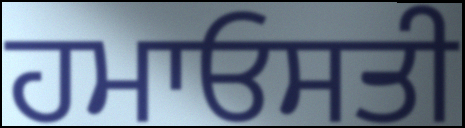
ਹਮਾਓਸਤੀ